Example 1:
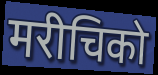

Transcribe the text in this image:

मरीचिको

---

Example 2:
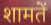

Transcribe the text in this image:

शामतें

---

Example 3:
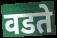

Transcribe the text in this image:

वडते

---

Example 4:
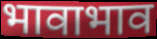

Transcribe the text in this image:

भावाभाव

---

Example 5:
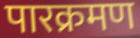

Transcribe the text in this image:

पारक्रमण